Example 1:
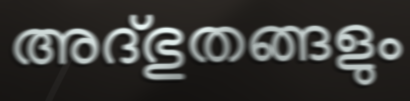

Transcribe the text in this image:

അദ്ഭുതങ്ങളും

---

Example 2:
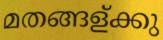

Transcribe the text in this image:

മതങ്ങള്ക്കു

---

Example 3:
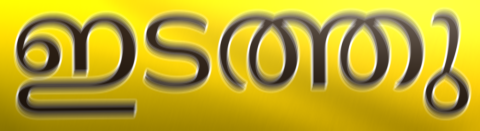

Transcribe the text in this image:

ഇടത്തു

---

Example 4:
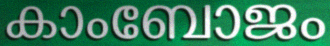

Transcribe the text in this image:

കാംബോജം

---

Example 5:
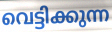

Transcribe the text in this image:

വെട്ടിക്കുന്ന